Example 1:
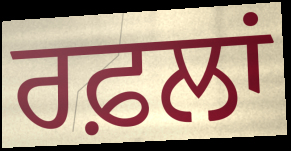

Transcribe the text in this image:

ਰਫ਼ਲਾਂ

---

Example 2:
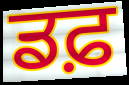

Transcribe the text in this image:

ਡਫ਼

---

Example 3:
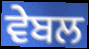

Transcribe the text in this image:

ਵੇਬਲ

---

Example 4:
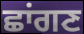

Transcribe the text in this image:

ਛਾਂਗਣ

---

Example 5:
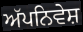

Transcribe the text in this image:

ਅੱਪਨਿਵੇਸ਼